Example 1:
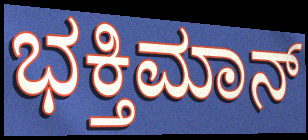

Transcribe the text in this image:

ಭಕ್ತಿಮಾನ್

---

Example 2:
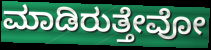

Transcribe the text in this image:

ಮಾಡಿರುತ್ತೇವೋ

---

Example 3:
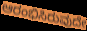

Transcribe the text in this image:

ಆರಂಭಿಸಿರುವುದೇ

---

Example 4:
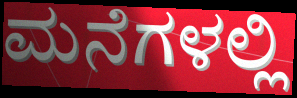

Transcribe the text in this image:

ಮನೆಗಳಲ್ಲಿ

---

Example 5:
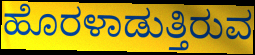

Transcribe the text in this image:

ಹೊರಳಾಡುತ್ತಿರುವ